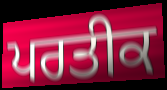
ਪਰਤੀਕ